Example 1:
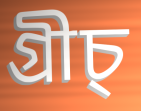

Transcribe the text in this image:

গ্ৰীচ্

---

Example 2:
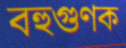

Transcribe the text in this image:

বহুগুণক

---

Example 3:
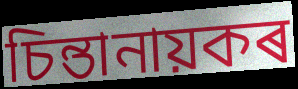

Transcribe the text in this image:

চিন্তানায়কৰ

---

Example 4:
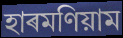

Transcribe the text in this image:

হাৰমণিয়াম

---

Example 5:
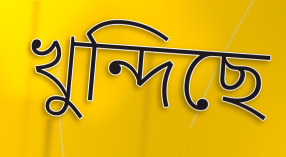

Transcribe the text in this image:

খুন্দিছে